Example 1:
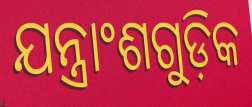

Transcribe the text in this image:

ଯନ୍ତ୍ରାଂଶଗୁଡ଼ିକ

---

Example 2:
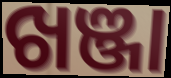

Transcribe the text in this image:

ଖଞ୍ଜା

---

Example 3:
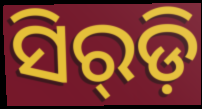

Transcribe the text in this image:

ସିର୍‌ଡ଼ି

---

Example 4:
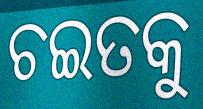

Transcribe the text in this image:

ଚଇତକୁ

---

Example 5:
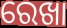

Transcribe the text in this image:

ରେଖା